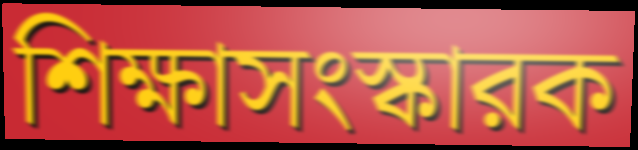
শিক্ষাসংস্কারক